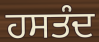
ਹਸਤੰਦ